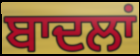
ਬਾਦਲਾਂ